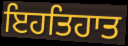
ਇਹਤਿਹਾਤ